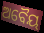
ଅବୈୟ